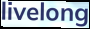
livelong